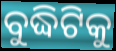
ବୁଦ୍ଧିଟିକୁ